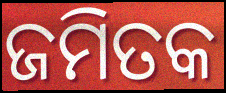
ଜମିତକ